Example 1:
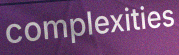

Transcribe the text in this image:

complexities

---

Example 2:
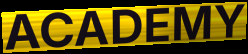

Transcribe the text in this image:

ACADEMY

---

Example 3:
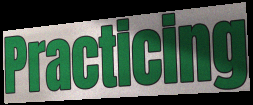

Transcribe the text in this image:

Practicing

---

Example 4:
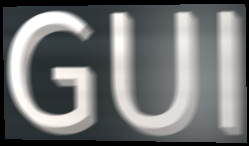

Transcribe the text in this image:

GUI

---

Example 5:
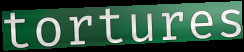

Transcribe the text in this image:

tortures